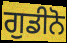
ਗੁਡੀਨੋ